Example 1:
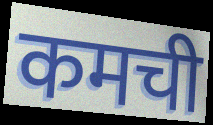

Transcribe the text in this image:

कमची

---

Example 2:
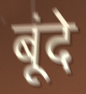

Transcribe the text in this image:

बूंदे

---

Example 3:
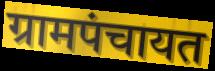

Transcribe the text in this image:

ग्रामपंचायत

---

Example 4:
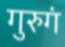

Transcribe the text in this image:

गुरुगं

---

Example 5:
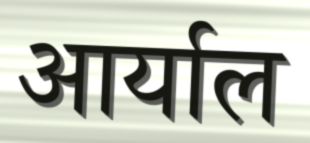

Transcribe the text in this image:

आर्याल